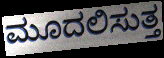
ಮೂದಲಿಸುತ್ತ